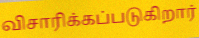
விசாரிக்கப்படுகிறார்